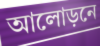
আলোড়নে